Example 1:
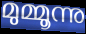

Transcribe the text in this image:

മുമ്മൂന്നു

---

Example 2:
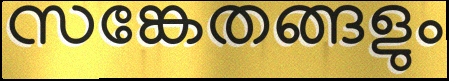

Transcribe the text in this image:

സങ്കേതങ്ങളും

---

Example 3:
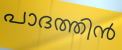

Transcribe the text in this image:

പാദത്തിൻ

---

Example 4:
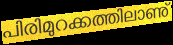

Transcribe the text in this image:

പിരിമുറക്കത്തിലാണു്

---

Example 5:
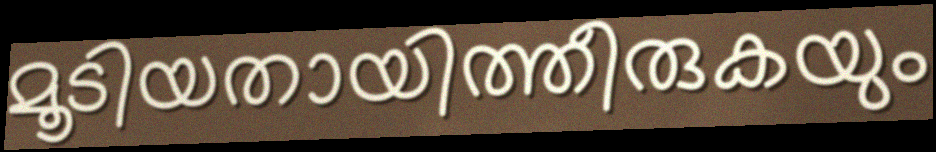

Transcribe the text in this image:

മൂടിയതായിത്തീരുകയും